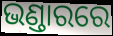
ଭଣ୍ଡାରରେ